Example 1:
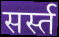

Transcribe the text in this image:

सर्स्त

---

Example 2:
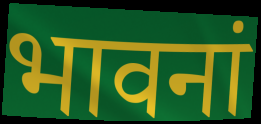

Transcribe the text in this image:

भावनां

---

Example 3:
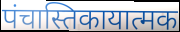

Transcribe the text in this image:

पंचास्तिकायात्मक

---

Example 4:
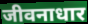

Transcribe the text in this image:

जीवनाधार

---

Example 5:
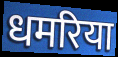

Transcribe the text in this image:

धमरिया